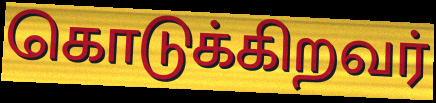
கொடுக்கிறவர்